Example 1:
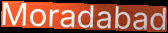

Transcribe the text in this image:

Moradabad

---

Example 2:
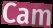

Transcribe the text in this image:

Cam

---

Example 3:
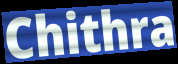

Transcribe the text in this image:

Chithra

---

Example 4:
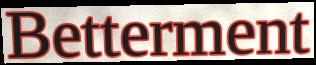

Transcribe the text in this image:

Betterment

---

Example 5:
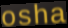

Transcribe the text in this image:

osha